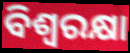
ବିଶ୍ୱରକ୍ଷା